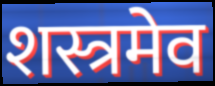
शस्त्रमेव